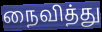
நைவித்து